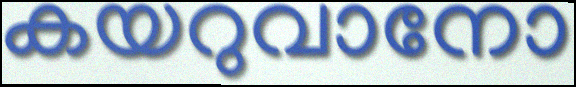
കയറുവാനോ